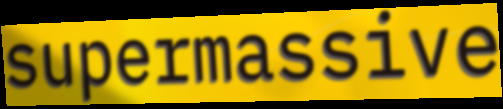
supermassive